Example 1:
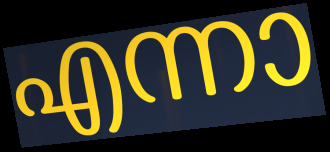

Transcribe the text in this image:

എന്നാ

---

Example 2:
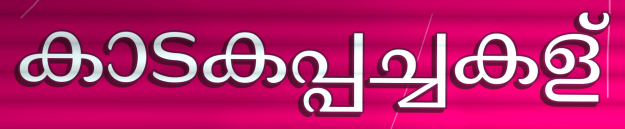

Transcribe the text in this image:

കാടകപ്പച്ചകള്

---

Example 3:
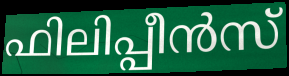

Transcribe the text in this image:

ഫിലിപ്പീൻസ്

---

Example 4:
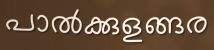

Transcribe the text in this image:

പാൽക്കുളങ്ങര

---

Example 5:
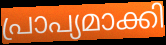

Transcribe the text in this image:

പ്രാപ്യമാക്കി